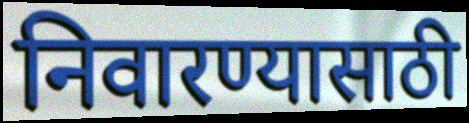
निवारण्यासाठी